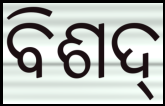
ବିଶଦ୍